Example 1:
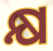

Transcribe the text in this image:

କ୍ଷ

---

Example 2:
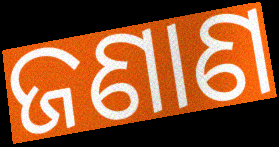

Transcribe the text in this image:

ଜଣାଣ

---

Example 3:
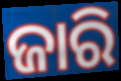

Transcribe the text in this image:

ଜାରି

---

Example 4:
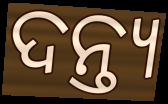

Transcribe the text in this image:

ଦନ୍ତ୍ୟ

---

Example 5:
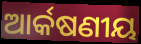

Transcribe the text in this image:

ଆର୍କଷଣୀୟ